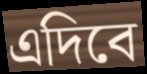
এদিবে